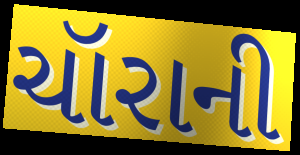
ચૉરાની